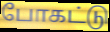
போகட்டு